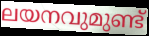
ലയനവുമുണ്ട്